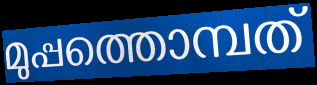
മുപ്പത്തൊമ്പത്